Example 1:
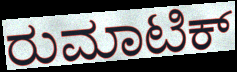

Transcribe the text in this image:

ರುಮಾಟಿಕ್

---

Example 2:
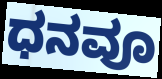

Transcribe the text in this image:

ಧನವೂ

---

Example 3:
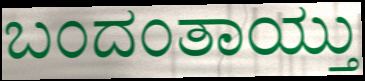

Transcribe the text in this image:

ಬಂದಂತಾಯ್ತು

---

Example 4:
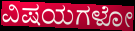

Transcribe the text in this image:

ವಿಷಯಗಳೋ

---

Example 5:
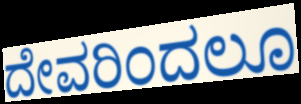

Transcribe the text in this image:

ದೇವರಿಂದಲೂ